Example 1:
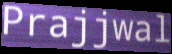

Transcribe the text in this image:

Prajjwal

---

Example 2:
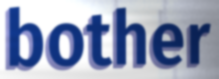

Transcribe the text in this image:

bother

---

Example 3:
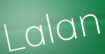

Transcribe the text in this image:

Lalan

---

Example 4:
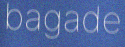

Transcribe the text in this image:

bagade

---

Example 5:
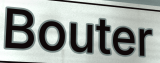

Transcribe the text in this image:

Bouter